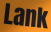
Lank